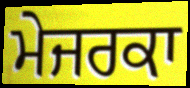
ਮੇਜਰਕਾ